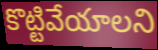
కొట్టివేయాలని